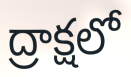
ద్రాక్షలో